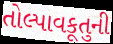
તોલ્પાવકૂતુની